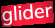
glider